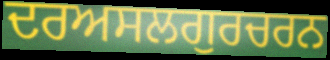
ਦਰਅਸਲਗੁਰਚਰਨ